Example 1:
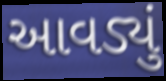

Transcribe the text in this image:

આવડ્યું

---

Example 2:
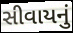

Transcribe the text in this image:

સીવાયનું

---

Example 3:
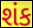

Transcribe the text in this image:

શંક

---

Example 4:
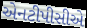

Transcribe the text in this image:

એનટીપીસીએ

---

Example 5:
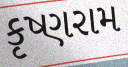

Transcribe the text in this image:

કૃષ્ણરામ